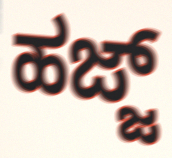
ಹಜ್ಜ್